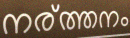
നര്ത്തനം